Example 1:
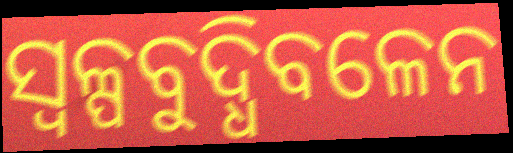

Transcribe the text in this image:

ସ୍ଵଳ୍ପବୁଦ୍ଧିବଳେନ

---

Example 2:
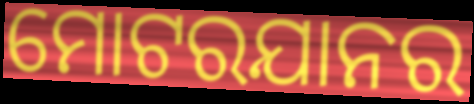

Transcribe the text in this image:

ମୋଟରଯାନର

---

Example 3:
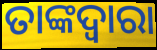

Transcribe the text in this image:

ତାଙ୍କଦ୍ଵାରା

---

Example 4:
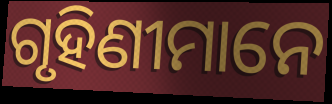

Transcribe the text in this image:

ଗୃହିଣୀମାନେ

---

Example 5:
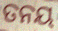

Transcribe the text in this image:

ତନୟ